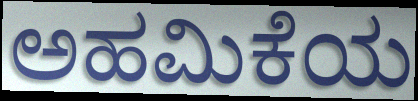
ಅಹಮಿಕೆಯ